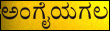
ಅಂಗೈಯಗಲ